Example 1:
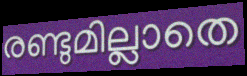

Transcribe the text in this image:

രണ്ടുമില്ലാതെ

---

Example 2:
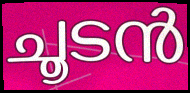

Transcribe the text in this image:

ചൂടൻ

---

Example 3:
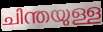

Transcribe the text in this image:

ചിന്തയുള്ള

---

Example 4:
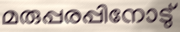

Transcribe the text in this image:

മരുപ്പരപ്പിനോടു്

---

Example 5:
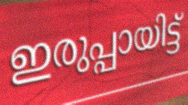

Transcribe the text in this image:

ഇരുപ്പായിട്ട്